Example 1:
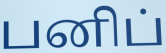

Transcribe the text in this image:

பனிப்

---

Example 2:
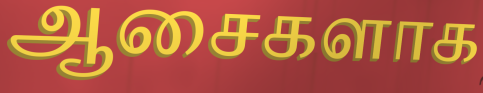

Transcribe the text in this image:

ஆசைகளாக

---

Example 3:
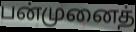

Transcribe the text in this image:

பன்முனைத்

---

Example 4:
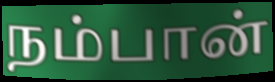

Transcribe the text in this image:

நம்பான்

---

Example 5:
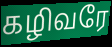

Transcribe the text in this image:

கழிவரே